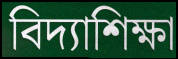
বিদ্যাশিক্ষা